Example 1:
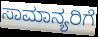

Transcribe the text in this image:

ಸಾಮಾನ್ಯರಿಗೆ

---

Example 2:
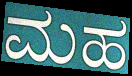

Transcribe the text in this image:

ಮಹ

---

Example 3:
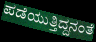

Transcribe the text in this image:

ಪಡೆಯುತ್ತಿದ್ದನಂತೆ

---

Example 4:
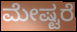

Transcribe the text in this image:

ಮೇಷ್ಟರೆ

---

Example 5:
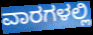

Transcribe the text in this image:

ವಾರಗಳಲ್ಲಿ